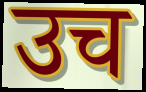
उच